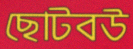
ছোটবউ